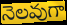
నెలవుగా